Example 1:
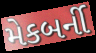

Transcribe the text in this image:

મેકબર્ની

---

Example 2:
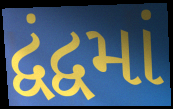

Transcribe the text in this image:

દ્વંદ્વમાં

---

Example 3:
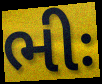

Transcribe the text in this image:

ભીઃ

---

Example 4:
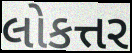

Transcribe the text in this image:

લોકત્તર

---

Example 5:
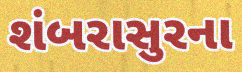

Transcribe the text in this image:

શંબરાસુરના